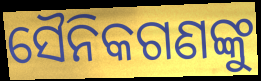
ସୈନିକଗଣଙ୍କୁ